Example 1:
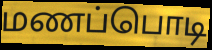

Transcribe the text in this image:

மணப்பொடி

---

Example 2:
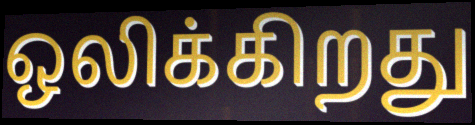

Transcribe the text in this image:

ஒலிக்கிறது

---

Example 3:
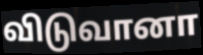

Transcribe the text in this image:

விடுவானா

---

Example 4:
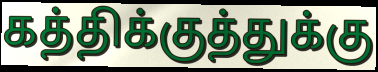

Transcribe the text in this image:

கத்திக்குத்துக்கு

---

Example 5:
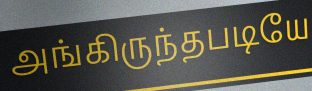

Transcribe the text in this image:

அங்கிருந்தபடியே